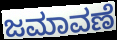
ಜಮಾವಣೆ